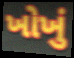
ખોખું